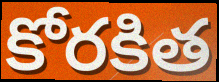
కోరకిత